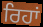
ਰਿਹਾਂ